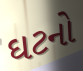
ઘટનો